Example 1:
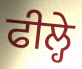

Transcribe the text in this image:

ਫੀਲ੍ਹੇ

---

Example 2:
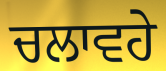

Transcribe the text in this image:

ਚਲਾਵਹੇ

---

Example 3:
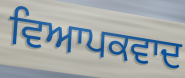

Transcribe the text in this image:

ਵਿਆਪਕਵਾਦ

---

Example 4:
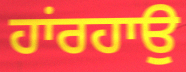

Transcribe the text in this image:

ਹਾਂਰਹਾਉ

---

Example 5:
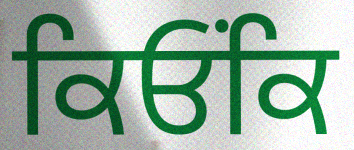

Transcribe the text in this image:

ਕਿਓਂਕਿ